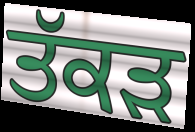
ਤੱਕੜ